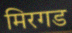
मिरगड